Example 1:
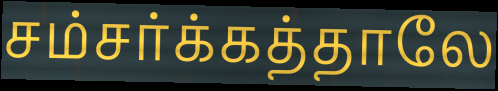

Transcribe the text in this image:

சம்சர்க்கத்தாலே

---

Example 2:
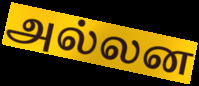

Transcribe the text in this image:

அல்லன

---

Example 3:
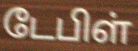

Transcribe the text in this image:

டேபிள்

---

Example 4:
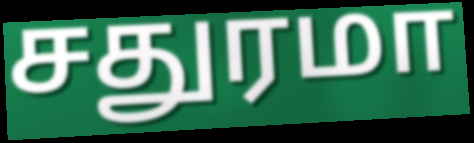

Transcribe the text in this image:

சதுரமா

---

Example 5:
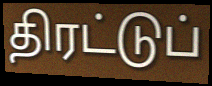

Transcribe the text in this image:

திரட்டுப்